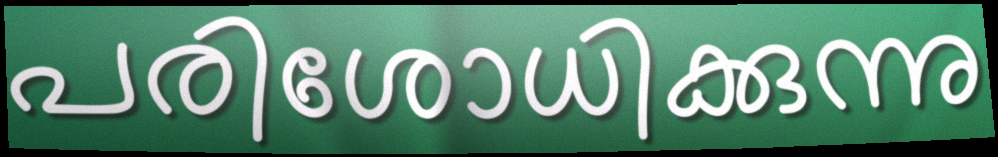
പരിശോധിക്കുന്നു